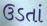
ઉડતાં